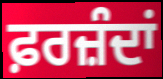
ਫ਼ਰਜ਼ੰਦਾਂ